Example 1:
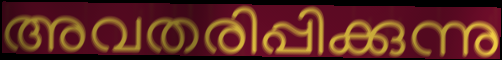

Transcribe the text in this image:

അവതരിപ്പിക്കുന്നു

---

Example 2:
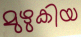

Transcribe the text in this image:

മുഴുകിയ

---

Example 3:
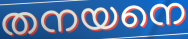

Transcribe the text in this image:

തനയനെ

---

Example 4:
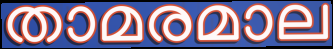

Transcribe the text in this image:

താമരമാല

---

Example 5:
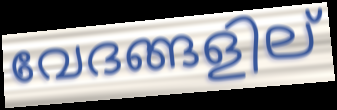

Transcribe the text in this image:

വേദങ്ങളില്